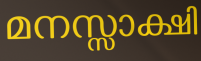
മനസ്സാക്ഷി